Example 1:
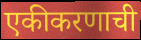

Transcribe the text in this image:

एकीकरणाची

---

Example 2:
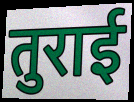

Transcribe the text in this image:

तुराई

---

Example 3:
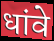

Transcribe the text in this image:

धांवे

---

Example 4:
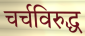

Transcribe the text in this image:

चर्चविरुद्ध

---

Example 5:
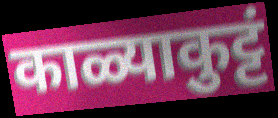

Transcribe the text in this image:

काळ्याकुट्टं